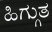
ಹಿಗ್ಗುತ